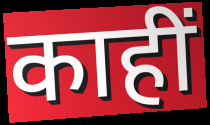
काहीं